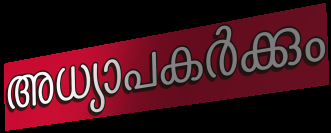
അധ്യാപകർക്കും